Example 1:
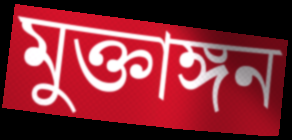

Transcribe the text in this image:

মুক্তাঙ্গন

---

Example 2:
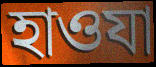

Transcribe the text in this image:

হাওযা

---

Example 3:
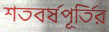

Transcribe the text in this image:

শতবর্ষপূর্তির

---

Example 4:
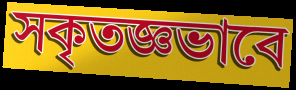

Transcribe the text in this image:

সকৃতজ্ঞভাবে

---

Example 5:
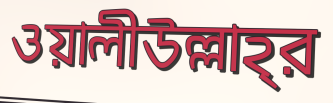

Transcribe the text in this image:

ওয়ালীউল্লাহ্‌র